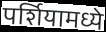
पर्शियामध्ये